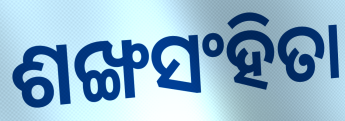
ଶଙ୍ଖସଂହିତା